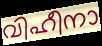
വിഹീനാ